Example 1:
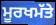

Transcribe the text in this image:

ਮੂਰਖਮੱਤੇ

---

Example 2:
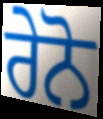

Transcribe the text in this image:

ਰੇਨੋ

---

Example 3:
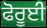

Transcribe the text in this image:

ਫੋਰੂਈ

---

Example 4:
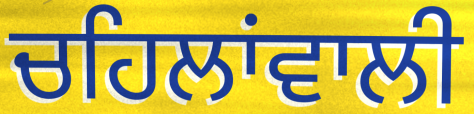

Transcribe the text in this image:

ਚਹਿਲਾਂਵਾਲੀ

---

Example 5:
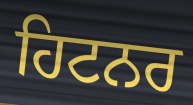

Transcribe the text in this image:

ਹਿਟਨਰ